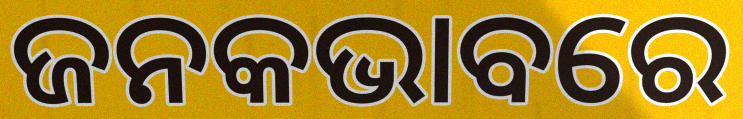
ଜନକଭାବରେ